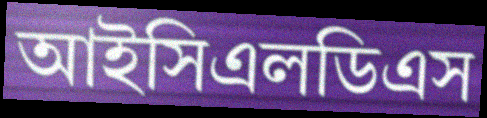
আইসিএলডিএস